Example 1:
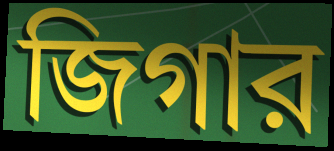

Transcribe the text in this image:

জিগার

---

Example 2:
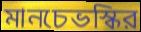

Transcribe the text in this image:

মানচেভস্কির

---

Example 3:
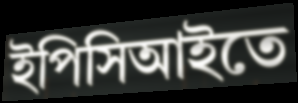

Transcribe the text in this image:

ইপিসিআইতে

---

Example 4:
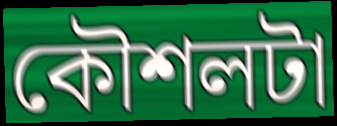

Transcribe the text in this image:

কৌশলটা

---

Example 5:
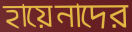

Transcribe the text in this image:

হায়েনাদের